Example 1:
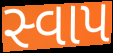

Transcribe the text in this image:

સ્વાપ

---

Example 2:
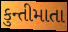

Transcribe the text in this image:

કુન્તીમાતા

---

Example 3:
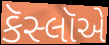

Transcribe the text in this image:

કૅસ્લૉએ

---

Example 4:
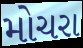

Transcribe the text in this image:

મોચરા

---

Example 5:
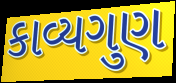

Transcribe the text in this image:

કાવ્યગુણ